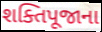
શક્તિપૂજાના